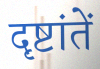
दृष्टांतें